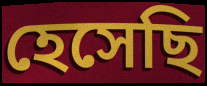
হেসেছি